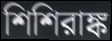
শিশিরাঙ্ক